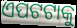
ଏପଟଟାକୁ